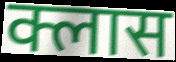
क्लास